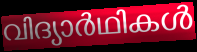
വിദ്യാർഥികൾ